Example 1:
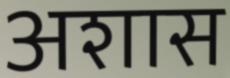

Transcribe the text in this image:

अशास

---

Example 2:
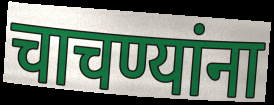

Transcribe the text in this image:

चाचण्यांना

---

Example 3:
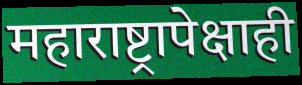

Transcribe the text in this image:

महाराष्ट्रापेक्षाही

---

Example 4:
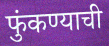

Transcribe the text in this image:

फुंकण्याची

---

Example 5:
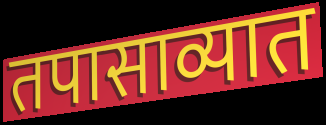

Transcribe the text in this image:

तपासाव्यात